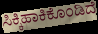
ಸಿಕ್ಕಿಹಾಕಿಕೊಂಡಿದೆ